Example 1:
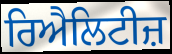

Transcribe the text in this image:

ਰਿਐਲਿਟੀਜ਼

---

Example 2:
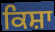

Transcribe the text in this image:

ਕਿਸ਼ਾ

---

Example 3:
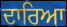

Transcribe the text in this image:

ਦਾਰਿਆ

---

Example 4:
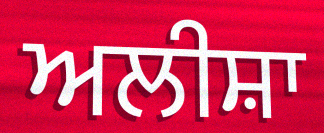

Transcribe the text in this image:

ਅਲੀਸ਼ਾ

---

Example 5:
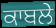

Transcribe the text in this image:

ਕਾਬਲੇ